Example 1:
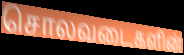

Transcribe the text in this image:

சொலவடைகளின்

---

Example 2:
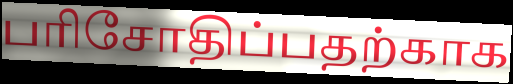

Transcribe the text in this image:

பரிசோதிப்பதற்காக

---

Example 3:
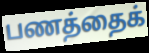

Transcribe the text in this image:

பணத்தைக்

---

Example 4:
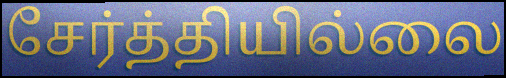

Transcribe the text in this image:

சேர்த்தியில்லை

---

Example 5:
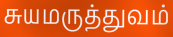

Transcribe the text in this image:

சுயமருத்துவம்